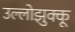
उल्लोझुक्कू